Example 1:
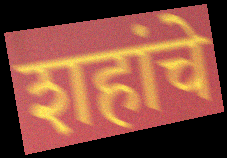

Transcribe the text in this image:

शहांचे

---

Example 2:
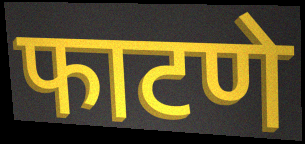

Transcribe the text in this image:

फाटणे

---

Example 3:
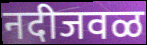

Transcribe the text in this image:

नदीजवळ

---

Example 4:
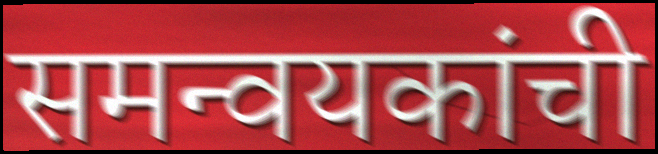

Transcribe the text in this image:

समन्वयकांची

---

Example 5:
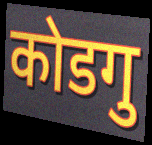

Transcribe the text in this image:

कोडगु